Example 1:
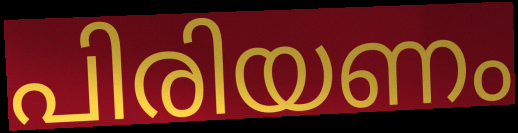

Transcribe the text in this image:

പിരിയണം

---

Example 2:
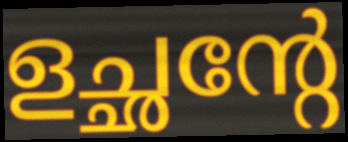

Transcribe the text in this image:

ളച്ഛന്റേ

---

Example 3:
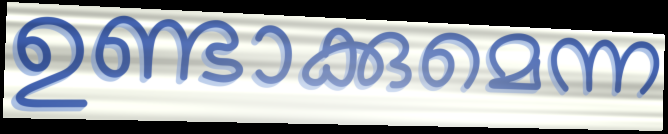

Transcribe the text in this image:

ഉണ്ടാക്കുമെന്ന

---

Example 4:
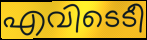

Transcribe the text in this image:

എവിടെടീ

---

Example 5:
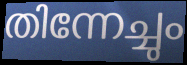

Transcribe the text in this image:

തിന്നേച്ചും